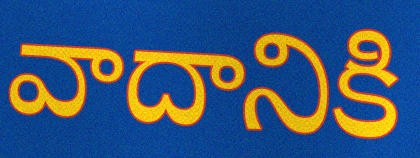
వాదానికి